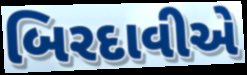
બિરદાવીએ